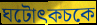
ঘটোৎকচকে